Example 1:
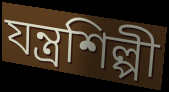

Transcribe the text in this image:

যন্ত্রশিল্পী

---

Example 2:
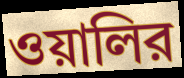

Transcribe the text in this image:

ওয়ালির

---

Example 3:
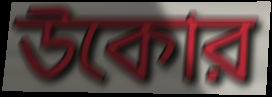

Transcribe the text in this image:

উকোর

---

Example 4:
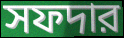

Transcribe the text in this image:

সফদার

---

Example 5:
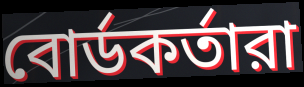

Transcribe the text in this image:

বোর্ডকর্তারা